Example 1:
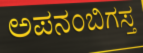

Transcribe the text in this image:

ಅಪನಂಬಿಗಸ್ತ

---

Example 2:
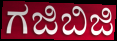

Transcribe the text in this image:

ಗಜಿಬಿಜಿ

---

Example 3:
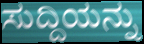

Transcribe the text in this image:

ಸುದ್ದಿಯನ್ನು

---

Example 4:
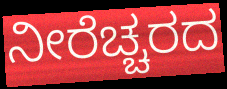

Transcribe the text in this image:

ನೀರೆಚ್ಚರದ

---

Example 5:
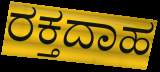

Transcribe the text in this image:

ರಕ್ತದಾಹ